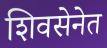
शिवसेनेत